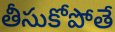
తీసుకోపోతే